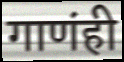
गाणंही